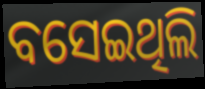
ବସେଇଥିଲି